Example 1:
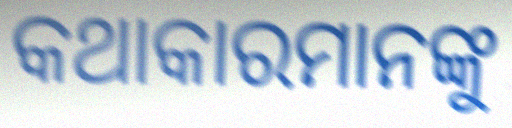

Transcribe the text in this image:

କଥାକାରମାନଙ୍କୁ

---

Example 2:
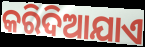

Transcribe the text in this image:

କରିଦିଆଯାଏ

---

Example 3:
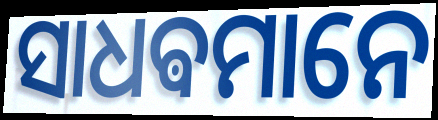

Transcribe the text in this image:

ସାଧଵମାନେ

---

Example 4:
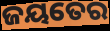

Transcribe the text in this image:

ଜୟତେର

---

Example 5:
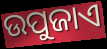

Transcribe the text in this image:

ଉପୁଜାଏ